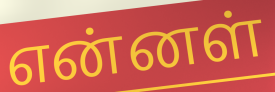
என்னள்